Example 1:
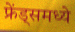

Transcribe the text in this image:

फ्रेंड्समध्ये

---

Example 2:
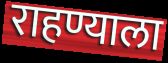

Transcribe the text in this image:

राहण्याला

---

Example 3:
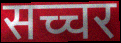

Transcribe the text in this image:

सच्चर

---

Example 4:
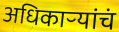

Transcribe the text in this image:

अधिकाऱ्यांचं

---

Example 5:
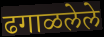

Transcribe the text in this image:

ढगाळलेले